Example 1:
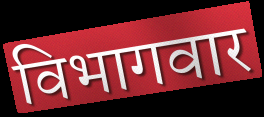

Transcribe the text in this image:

विभागवार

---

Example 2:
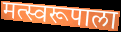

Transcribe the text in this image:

मत्स्वरूपाला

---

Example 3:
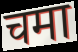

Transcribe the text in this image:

चमा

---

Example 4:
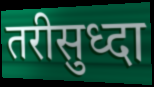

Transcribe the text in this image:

तरीसुध्दा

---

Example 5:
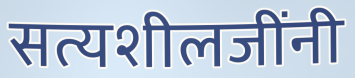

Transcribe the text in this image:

सत्यशीलजींनी